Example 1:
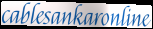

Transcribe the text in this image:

cablesankaronline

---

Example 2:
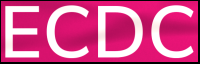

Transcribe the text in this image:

ECDC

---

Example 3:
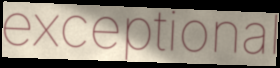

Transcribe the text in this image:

exceptional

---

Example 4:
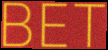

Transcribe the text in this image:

BET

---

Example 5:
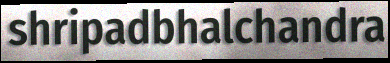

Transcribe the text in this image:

shripadbhalchandra